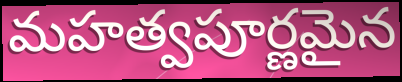
మహత్వపూర్ణమైన